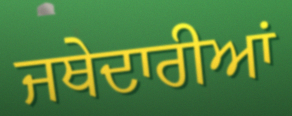
ਜਥੇਦਾਰੀਆਂ